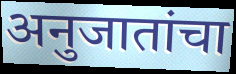
अनुजातांचा